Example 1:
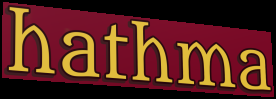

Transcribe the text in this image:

hathma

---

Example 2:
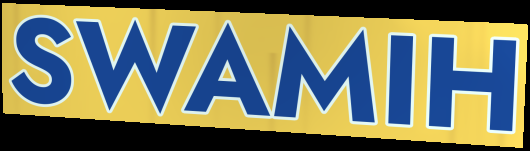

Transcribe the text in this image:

SWAMIH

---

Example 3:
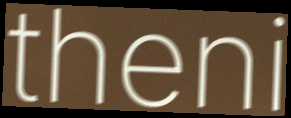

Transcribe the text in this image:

theni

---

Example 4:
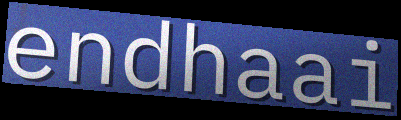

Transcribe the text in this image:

endhaai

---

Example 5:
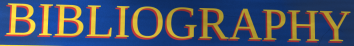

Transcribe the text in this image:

BIBLIOGRAPHY